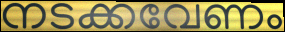
നടക്കവേണം